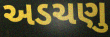
અડચણુ